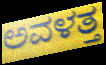
ಅವಳತ್ತ